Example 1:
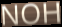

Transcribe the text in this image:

NOH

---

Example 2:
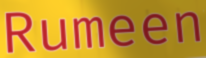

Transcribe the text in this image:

Rumeen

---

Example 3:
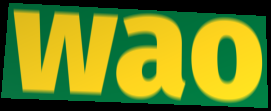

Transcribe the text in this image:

wao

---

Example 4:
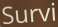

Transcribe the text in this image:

Survi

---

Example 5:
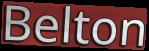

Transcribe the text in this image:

Belton